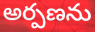
అర్పణను